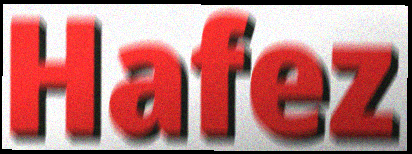
Hafez